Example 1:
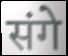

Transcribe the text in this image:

संगे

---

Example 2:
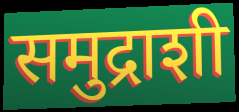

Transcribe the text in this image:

समुद्राशी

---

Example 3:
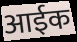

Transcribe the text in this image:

आईक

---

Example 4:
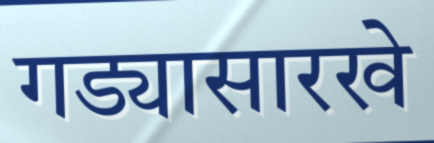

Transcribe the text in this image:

गड्यासारखे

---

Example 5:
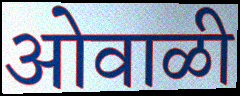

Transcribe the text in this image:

ओवाळी